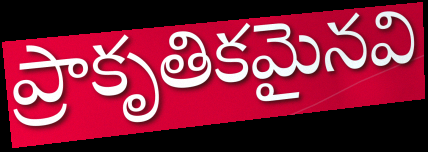
ప్రాకృతికమైనవి